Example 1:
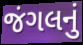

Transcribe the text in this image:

જંગલનું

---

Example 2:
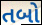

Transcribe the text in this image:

તબો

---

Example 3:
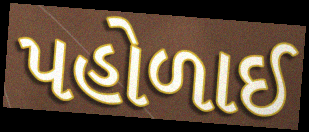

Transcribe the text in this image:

પહોળાઈ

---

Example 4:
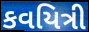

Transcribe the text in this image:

કવયિત્રી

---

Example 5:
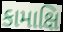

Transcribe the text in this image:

કામાક્ષિ